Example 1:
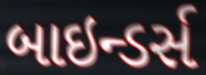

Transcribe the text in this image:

બાઇન્ડર્સ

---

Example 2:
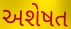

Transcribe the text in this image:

અશેષત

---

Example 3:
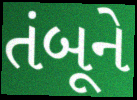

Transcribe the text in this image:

તંબૂને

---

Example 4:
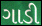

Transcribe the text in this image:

ગાડી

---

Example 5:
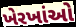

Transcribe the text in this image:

ખેરખાંઓ